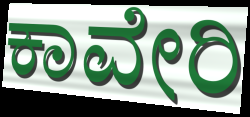
ಕಾವೇರಿ